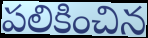
పలికించిన